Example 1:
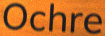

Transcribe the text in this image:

Ochre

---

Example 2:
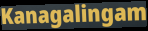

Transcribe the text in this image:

Kanagalingam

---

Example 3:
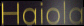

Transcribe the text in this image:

Haiola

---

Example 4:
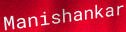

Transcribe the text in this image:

Manishankar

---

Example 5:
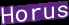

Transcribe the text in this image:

Horus